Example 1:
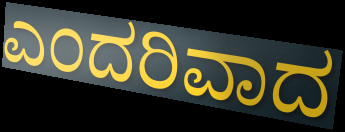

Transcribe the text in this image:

ಎಂದರಿವಾದ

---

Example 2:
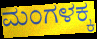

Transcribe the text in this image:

ಮಂಗಳಕ್ಕ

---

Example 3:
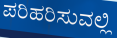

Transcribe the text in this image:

ಪರಿಹರಿಸುವಲ್ಲಿ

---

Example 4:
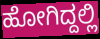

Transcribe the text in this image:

ಹೋಗಿದ್ದಲ್ಲಿ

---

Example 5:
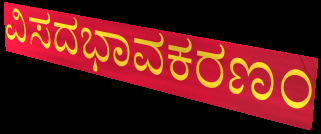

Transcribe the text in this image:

ವಿಸದಭಾವಕರಣಂ